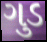
ગુડ